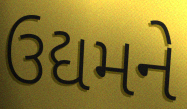
ઉદ્યમને